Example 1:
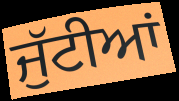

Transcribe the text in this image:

ਜੁੱਟੀਆਂ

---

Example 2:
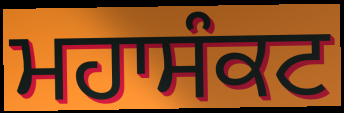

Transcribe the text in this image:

ਮਹਾਸੰਕਟ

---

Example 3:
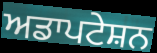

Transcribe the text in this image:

ਅਡਾਪਟੇਸ਼ਨ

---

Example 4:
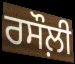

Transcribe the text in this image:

ਰਸੌਲ਼ੀ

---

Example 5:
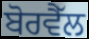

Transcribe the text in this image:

ਬੋਰਵੈੱਲ